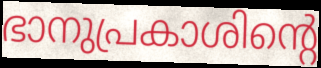
ഭാനുപ്രകാശിന്റെ